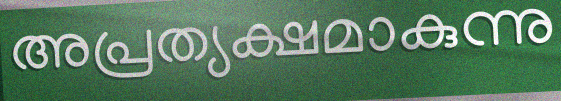
അപ്രത്യക്ഷമാകുന്നു